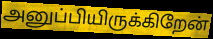
அனுப்பியிருக்கிறேன்